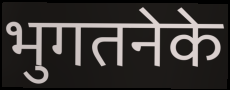
भुगतनेके